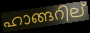
ഹാങ്ങറില്